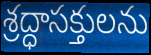
శ్రద్ధాసక్తులను